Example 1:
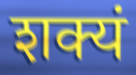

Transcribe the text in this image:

शक्यं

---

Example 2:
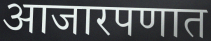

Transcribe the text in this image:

आजारपणात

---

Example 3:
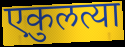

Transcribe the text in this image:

एकुलत्या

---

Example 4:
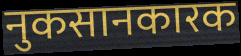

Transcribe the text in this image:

नुकसानकारक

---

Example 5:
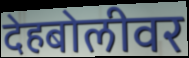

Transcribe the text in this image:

देहबोलीवर